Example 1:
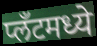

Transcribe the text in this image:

प्लँटमध्ये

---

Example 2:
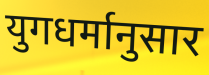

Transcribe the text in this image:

युगधर्मानुसार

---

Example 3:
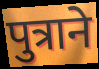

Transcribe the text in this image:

पुत्राने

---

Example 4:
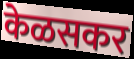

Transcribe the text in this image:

केळसकर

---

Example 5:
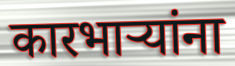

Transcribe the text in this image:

कारभाऱ्यांना